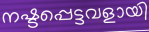
നഷ്ടപ്പെട്ടവളായി